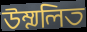
উম্মলিত